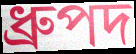
ধ্ৰুপদ